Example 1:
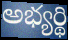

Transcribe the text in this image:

అభ్యర్థి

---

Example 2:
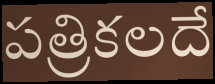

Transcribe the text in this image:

పత్రికలదే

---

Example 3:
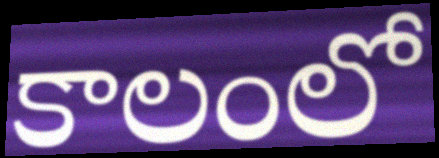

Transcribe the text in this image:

కాలంలో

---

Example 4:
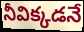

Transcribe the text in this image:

నీవిక్కడనే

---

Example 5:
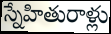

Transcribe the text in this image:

స్నేహితురాళ్లు